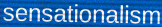
sensationalism